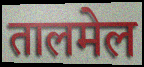
तालमेल